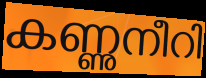
കണ്ണുനീറി